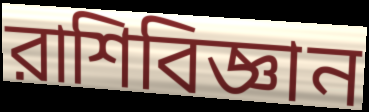
রাশিবিজ্ঞান